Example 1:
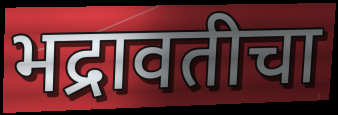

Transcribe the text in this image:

भद्रावतीचा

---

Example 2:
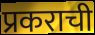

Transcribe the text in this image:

प्रकराची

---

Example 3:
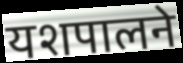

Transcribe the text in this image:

यशपालने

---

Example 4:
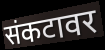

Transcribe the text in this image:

संकटावर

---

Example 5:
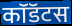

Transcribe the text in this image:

कॉडॅटस